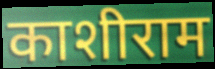
काशीराम